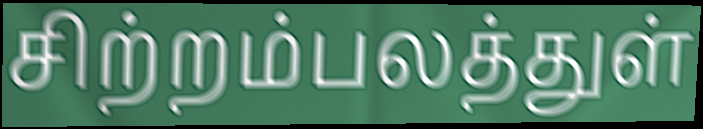
சிற்றம்பலத்துள்